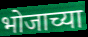
भोजाच्या